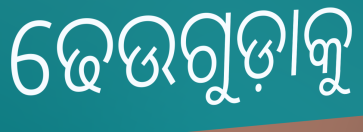
ଢେଉଗୁଡ଼ାକୁ